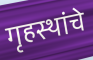
गृहस्थांचे